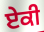
ਏਕੀ